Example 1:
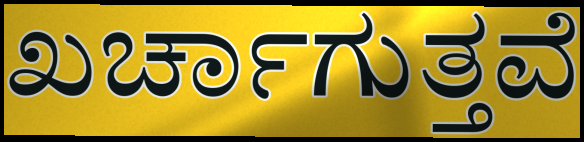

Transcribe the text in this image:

ಖರ್ಚಾಗುತ್ತವೆ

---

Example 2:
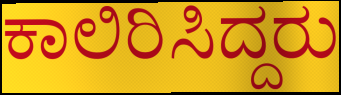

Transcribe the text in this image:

ಕಾಲಿರಿಸಿದ್ದರು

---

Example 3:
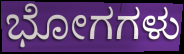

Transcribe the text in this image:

ಭೋಗಗಳು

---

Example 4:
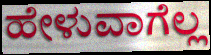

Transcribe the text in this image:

ಹೇಳುವಾಗೆಲ್ಲ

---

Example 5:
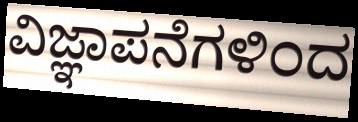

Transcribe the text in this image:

ವಿಜ್ಞಾಪನೆಗಳಿಂದ